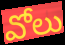
వోలు